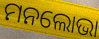
ମନଲୋଭା